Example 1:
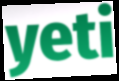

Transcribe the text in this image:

yeti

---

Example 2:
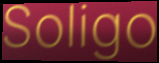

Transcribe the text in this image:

Soligo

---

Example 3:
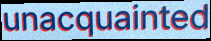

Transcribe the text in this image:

unacquainted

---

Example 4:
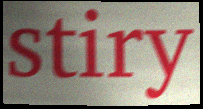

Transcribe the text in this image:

stiry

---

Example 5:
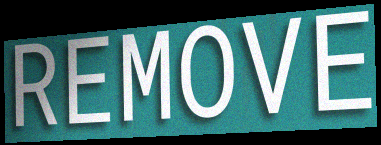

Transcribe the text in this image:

REMOVE